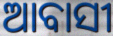
ଆବାସୀ